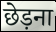
छेड़ना